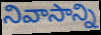
నివాసాన్ని